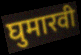
घुमारवी